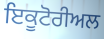
ਇਕੂਟੋਰੀਅਲ